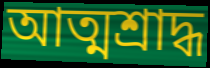
আত্মশ্রাদ্ধ